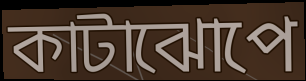
কাটাঝোপে